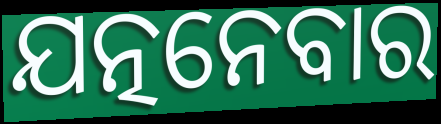
ଯତ୍ନନେବାର